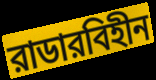
রাডারবিহীন